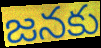
జనకు